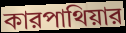
কারপাথিয়ার